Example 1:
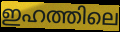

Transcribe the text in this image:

ഇഹത്തിലെ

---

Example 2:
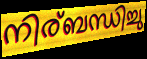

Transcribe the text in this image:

നിര്ബന്ധിച്ചു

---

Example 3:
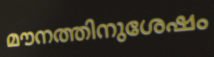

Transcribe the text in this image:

മൗനത്തിനുശേഷം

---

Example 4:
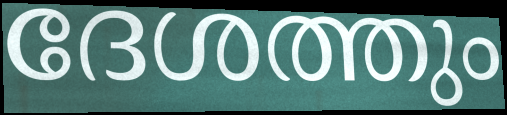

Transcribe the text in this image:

ദേശത്തും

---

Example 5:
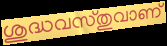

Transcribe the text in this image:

ശുദ്ധവസ്തുവാണ്